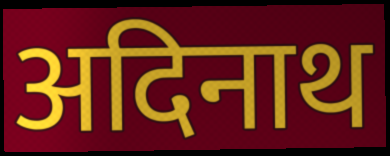
अदिनाथ